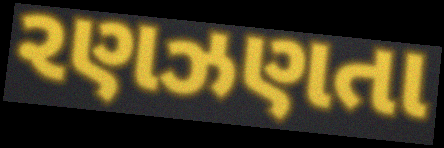
રણઝણતા